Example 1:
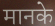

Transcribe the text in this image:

मानके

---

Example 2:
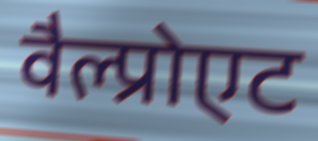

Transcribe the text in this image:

वैल्प्रोएट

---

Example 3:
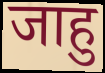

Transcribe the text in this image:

जाहु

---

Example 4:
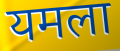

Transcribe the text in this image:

यमला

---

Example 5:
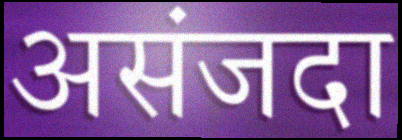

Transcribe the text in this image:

असंजदा